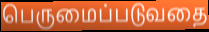
பெருமைப்படுவதை